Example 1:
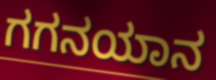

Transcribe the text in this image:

ಗಗನಯಾನ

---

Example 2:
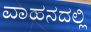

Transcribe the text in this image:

ವಾಹನದಲ್ಲಿ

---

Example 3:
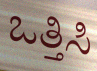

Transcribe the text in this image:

ಒತ್ತಿಸಿ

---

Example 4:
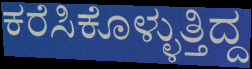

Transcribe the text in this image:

ಕರೆಸಿಕೊಳ್ಳುತ್ತಿದ್ದ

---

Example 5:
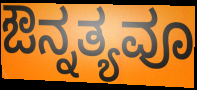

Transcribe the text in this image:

ಔನ್ನತ್ಯವೂ